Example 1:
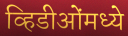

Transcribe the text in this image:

व्हिडीओंमध्ये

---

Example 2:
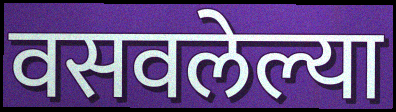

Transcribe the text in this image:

वसवलेल्या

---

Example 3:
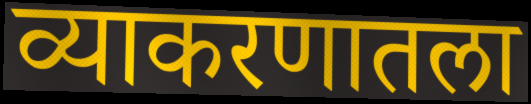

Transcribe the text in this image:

व्याकरणातला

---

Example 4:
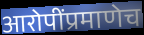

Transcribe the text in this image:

आरोपींप्रमाणेच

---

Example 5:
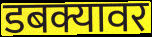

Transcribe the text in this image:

डबक्यावर